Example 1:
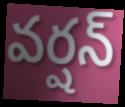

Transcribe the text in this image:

వర్షన్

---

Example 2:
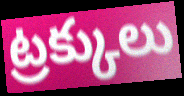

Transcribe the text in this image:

ట్రక్కులు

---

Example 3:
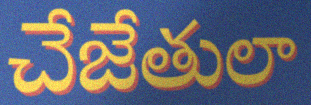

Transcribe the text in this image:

చేజేతులా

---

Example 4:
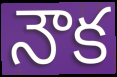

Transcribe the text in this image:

నౌక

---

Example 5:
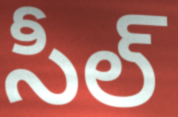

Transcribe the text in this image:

సీల్